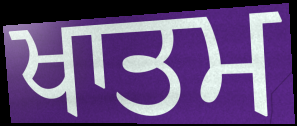
ਖਾਤਮ